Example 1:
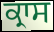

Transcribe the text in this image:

ਕ੍ਰਾਸ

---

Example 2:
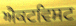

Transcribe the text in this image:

ਐਕਟਵਿਸਟ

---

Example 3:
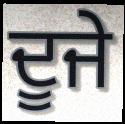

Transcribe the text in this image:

ਦੂਜੇ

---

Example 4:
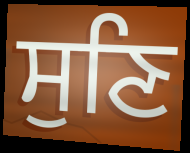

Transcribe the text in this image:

ਸੁਣਿ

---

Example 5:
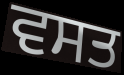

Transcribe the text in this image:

ਵਸਤ